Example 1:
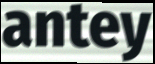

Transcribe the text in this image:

antey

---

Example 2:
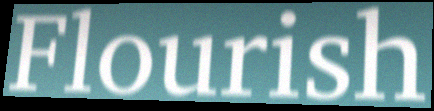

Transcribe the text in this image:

Flourish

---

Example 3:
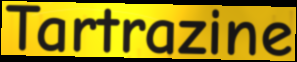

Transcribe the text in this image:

Tartrazine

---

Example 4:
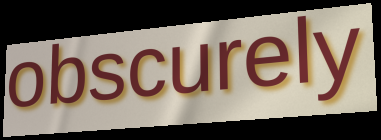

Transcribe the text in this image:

obscurely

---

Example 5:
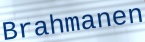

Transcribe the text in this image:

Brahmanen